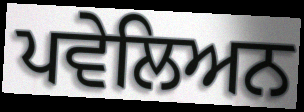
ਪਵੇਲਿਅਨ